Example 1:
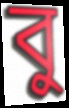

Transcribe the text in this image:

বু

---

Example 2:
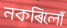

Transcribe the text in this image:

নকৰিলোঁ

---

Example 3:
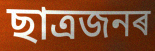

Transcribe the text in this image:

ছাত্ৰজনৰ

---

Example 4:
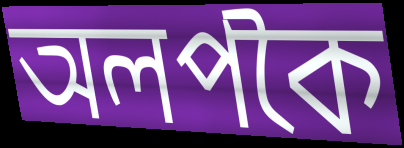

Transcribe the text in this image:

অলপকৈ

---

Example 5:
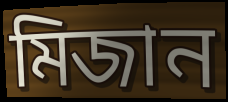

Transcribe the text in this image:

মিজান